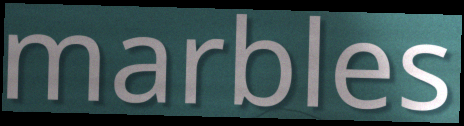
marbles